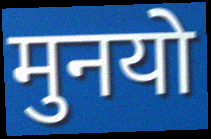
मुनयो